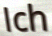
Ich